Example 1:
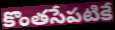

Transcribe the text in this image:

కొంతసేపటికే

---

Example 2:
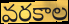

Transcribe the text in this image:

వరకాల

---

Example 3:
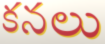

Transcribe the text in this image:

కనలు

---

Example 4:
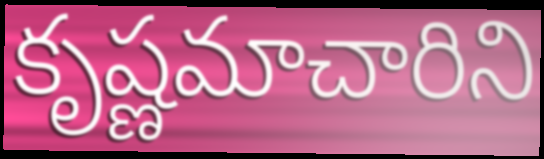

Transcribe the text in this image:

కృష్ణమాచారిని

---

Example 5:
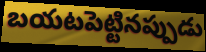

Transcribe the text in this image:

బయటపెట్టినప్పుడు